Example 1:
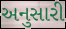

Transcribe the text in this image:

અનુસારી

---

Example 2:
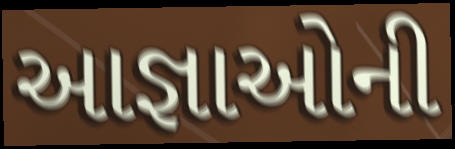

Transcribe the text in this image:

આજ્ઞાઓની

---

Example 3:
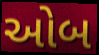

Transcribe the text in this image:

ઓબ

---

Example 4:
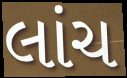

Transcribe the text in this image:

લાંચ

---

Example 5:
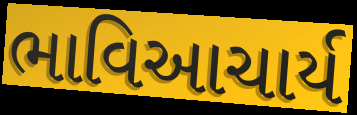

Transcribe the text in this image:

ભાવિઆચાર્ય